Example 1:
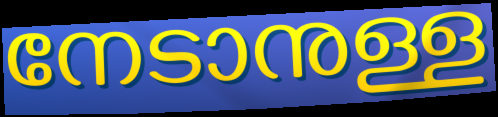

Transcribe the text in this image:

നേടാനുള്ള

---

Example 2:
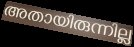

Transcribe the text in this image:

അതായിരുന്നില്ല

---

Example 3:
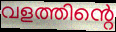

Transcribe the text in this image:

വളത്തിന്റെ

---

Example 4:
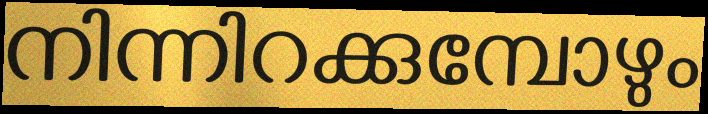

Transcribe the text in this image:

നിന്നിറക്കുമ്പോഴും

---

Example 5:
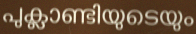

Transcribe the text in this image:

പുക്ലാണ്ടിയുടെയും